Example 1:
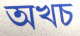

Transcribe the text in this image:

অখচ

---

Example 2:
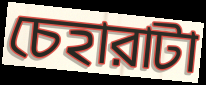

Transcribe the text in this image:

চেহারাটা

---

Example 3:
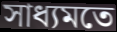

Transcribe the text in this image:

সাধ্যমতে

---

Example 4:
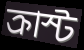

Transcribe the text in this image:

ক্রাস্ট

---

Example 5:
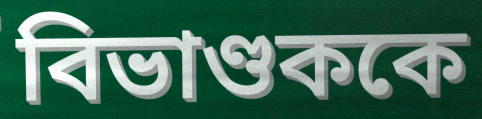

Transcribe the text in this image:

বিভাণ্ডককে